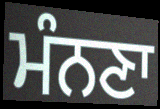
ਮੰਨਣਾ